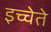
इच्चेते